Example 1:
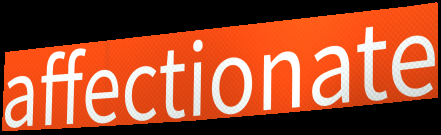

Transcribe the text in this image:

affectionate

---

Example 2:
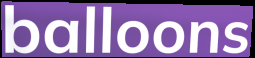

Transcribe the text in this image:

balloons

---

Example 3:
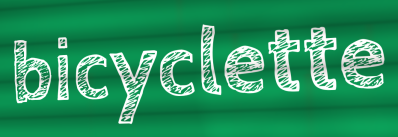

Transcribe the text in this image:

bicyclette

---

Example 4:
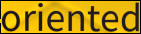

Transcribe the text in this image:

oriented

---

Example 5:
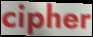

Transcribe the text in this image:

cipher